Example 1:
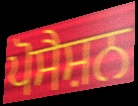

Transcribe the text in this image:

ਪੋਸੈਸ਼ਨ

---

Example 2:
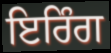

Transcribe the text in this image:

ਇਰਿੰਗ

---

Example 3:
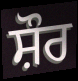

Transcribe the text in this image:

ਸ਼ੌਰ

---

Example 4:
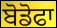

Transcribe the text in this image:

ਬੋਡੋਫਾ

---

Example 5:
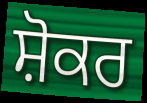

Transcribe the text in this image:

ਸ਼ੋਕਰ